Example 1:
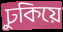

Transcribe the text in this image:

ঢুকিয়ে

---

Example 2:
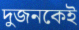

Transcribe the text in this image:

দুজনকেই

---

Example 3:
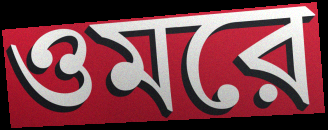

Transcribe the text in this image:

ওমরে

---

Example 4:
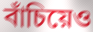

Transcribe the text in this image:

বাঁচিয়েও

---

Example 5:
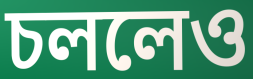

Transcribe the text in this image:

চললেও